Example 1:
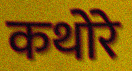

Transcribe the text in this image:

कथोरे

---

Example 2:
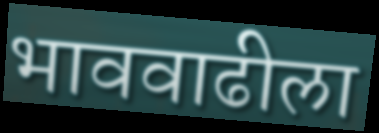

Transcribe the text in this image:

भाववाढीला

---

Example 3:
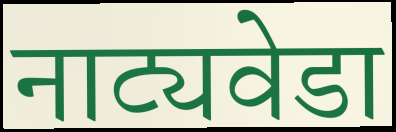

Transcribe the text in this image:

नाट्यवेडा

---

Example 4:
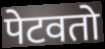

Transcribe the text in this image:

पेटवतो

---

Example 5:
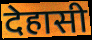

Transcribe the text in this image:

देहासी